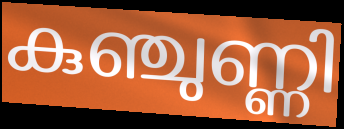
കുഞ്ചുണ്ണി